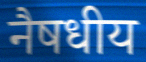
नैषधीय